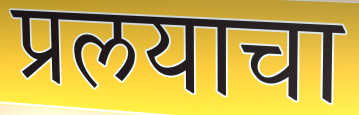
प्रलयाचा